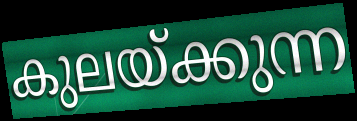
കുലയ്ക്കുന്ന